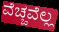
ವೆಚ್ಚವೆಲ್ಲ